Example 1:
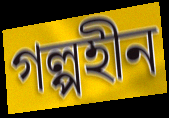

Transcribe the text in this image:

গল্পহীন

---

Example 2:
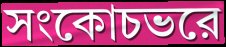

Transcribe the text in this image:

সংকোচভরে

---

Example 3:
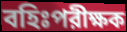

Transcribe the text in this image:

বহিঃপরীক্ষক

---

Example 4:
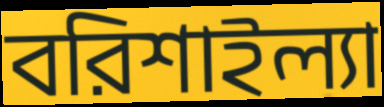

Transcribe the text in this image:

বরিশাইল্যা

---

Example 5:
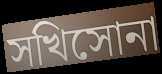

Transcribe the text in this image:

সখিসোনা